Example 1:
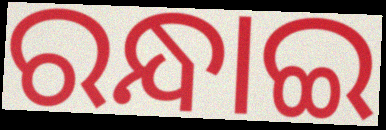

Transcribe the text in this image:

ରନ୍ଧାଇ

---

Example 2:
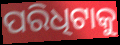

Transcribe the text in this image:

ପରିଧିଟାକୁ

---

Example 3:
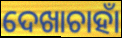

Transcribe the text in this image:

ଦେଖାଚାହାଁ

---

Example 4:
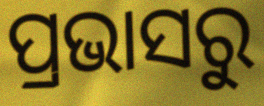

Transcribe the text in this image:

ପ୍ରଭାସରୁ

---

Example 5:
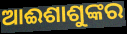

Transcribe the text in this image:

ଆଈଶାଶୁଙ୍କର